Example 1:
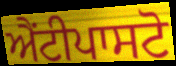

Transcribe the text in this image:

ਐਂਟੀਪਾਸਟੋ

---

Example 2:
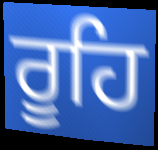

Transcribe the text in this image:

ਰੂਹਿ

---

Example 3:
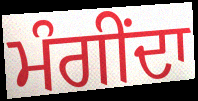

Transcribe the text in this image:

ਮੰਗੀਂਦਾ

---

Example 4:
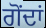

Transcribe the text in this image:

ਗੋਂਦਾਂ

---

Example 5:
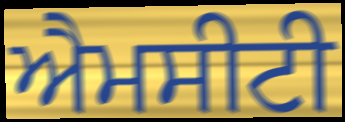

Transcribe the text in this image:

ਐਮਸੀਟੀ